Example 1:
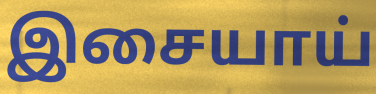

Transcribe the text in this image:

இசையாய்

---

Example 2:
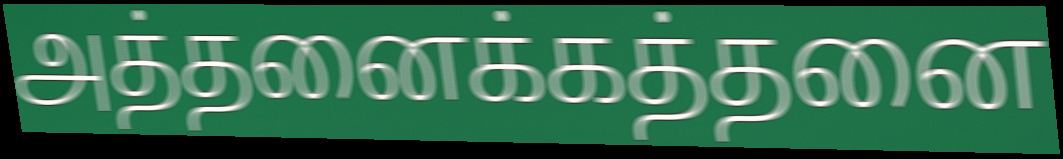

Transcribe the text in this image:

அத்தனைக்கத்தனை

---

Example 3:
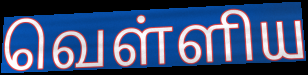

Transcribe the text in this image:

வெள்ளிய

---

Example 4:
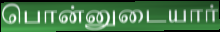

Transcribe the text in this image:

பொன்னுடையார்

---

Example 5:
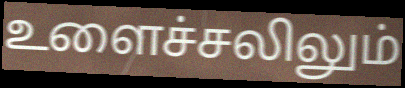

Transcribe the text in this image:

உளைச்சலிலும்